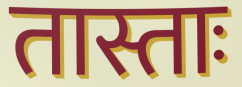
तास्ताः